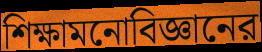
শিক্ষামনোবিজ্ঞানের